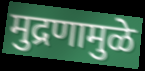
मुद्रणामुळे